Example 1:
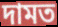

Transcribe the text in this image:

দামত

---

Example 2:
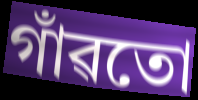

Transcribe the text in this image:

গাঁৱতো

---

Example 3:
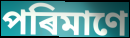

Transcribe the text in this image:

পৰিমাণে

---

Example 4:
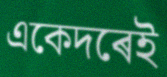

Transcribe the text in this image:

একেদৰেই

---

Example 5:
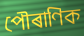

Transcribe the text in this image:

পৌৰাণিক